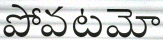
పోవటమో